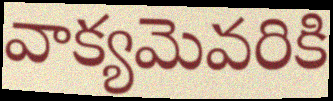
వాక్యమెవరికి